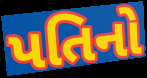
પતિનો